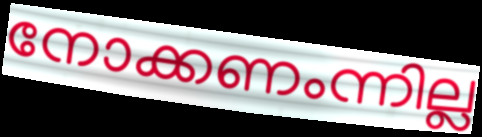
നോക്കണംന്നില്ല